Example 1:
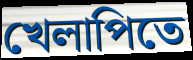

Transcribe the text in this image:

খেলাপিতে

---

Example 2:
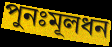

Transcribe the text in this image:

পুনঃমূলধন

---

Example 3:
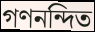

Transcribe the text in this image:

গণনন্দিত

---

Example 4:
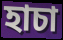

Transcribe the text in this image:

হাচা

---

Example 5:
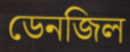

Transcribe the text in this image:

ডেনজিল